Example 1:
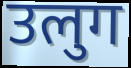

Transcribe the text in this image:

उलुग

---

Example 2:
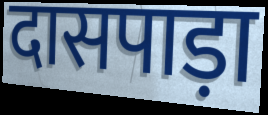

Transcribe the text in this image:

दासपाड़ा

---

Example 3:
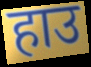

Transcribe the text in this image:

हाउ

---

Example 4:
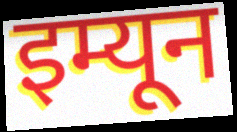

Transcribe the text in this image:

इम्यून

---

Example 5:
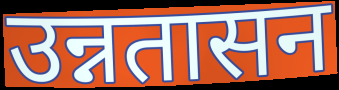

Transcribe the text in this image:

उन्नतासन